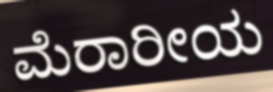
ಮೆರಾರೀಯ